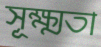
সূক্ষ্মতা